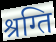
श्रग्ति